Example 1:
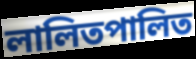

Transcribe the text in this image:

লালিতপালিত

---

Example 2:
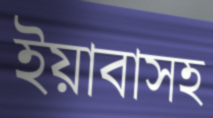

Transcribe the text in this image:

ইয়াবাসহ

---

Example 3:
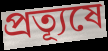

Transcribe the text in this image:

প্রত্যূষে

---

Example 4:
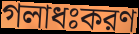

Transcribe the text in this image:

গলাধঃকরণ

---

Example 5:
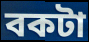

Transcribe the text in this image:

বকটা